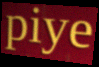
piye